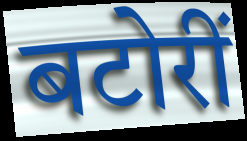
बटोरीं